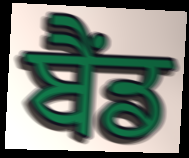
ਬੈਂਡ